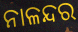
ନାଳନ୍ଦର